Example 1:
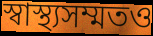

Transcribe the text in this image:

স্বাস্থ্যসম্মতও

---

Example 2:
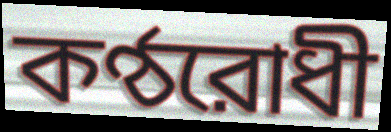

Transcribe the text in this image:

কণ্ঠরোধী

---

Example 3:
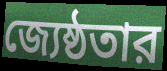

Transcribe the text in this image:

জ্যেষ্ঠতার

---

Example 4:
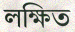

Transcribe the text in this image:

লক্ষিত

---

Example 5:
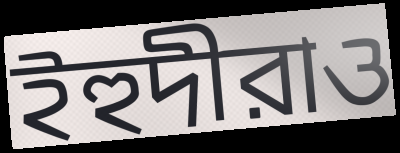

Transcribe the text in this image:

ইহুদীরাও